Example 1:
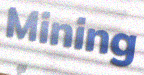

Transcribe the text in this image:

Mining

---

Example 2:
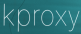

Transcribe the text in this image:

kproxy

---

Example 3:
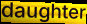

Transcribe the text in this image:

daughter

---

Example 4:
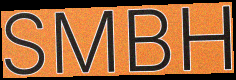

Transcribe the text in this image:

SMBH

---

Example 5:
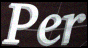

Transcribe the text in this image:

Per